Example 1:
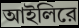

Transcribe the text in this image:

আইলিরে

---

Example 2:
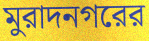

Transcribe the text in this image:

মুরাদনগরের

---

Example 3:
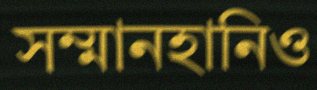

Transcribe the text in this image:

সম্মানহানিও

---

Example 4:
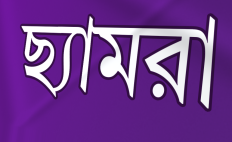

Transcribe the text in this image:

ছ্যামরা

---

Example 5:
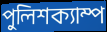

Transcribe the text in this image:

পুলিশক্যাম্প